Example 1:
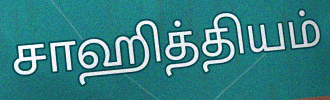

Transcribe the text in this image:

சாஹித்தியம்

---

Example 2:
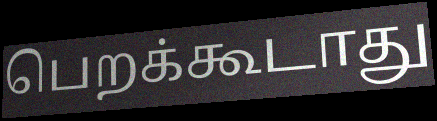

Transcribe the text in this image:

பெறக்கூடாது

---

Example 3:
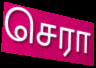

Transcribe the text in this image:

செரா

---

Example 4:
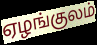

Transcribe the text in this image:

ஏழங்குலம்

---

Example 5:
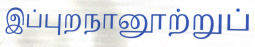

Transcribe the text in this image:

இப்புறநானூற்றுப்